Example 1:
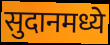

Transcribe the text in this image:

सुदानमध्ये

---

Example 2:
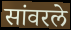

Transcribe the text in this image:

सांवरले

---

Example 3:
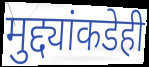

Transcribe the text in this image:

मुद्द्यांकडेही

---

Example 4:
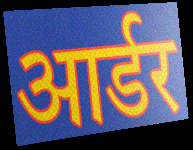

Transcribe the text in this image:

आर्डर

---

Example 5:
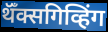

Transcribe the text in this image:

थॅँक्सगिव्हिंग